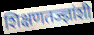
शिक्षणतज्ज्ञांशी